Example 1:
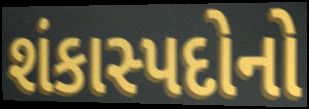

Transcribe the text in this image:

શંકાસ્પદોનો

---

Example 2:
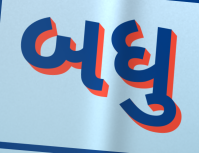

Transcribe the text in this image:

બધુ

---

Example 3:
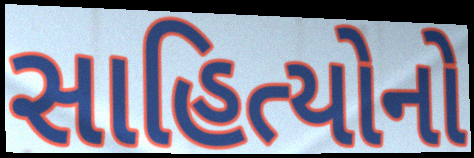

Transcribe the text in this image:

સાહિત્યોનો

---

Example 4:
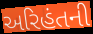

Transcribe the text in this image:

અરિહંતની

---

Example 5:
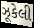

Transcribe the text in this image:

ઝૂકેલી